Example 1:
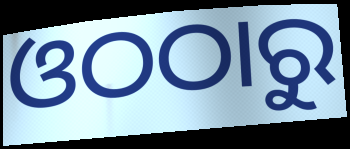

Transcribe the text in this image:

ଓଠଠାରୁ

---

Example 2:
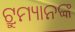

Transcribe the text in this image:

ଟ୍ରୁମ୍ୟାନଙ୍କ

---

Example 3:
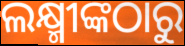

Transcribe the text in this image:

ଲକ୍ଷ୍ମୀଙ୍କଠାରୁ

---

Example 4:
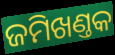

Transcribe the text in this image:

ଜମିଖଣ୍ତକ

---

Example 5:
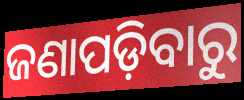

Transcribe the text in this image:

ଜଣାପଡ଼ିବାରୁ